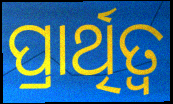
ପ୍ରାର୍ଥିତ୍ୱ